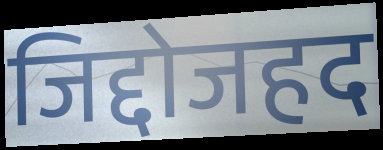
जिद्दोजहद